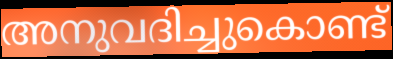
അനുവദിച്ചുകൊണ്ട്